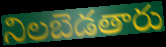
నిలబెడతారు